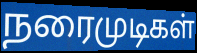
நரைமுடிகள்